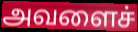
அவளைச்